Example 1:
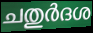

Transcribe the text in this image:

ചതുർദശ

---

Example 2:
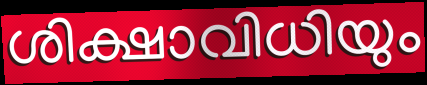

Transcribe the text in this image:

ശിക്ഷാവിധിയും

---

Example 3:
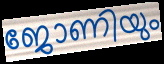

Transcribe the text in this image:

ജോണിയും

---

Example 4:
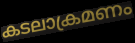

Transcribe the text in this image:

കടലാക്രമണം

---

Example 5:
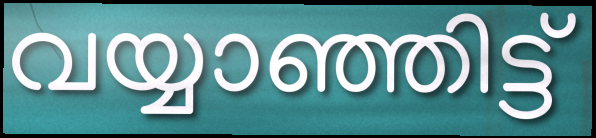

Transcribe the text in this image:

വയ്യാഞ്ഞിട്ട്